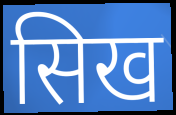
सिख